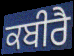
ਕਬੀਰੈ